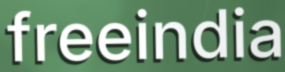
freeindia